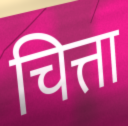
चित्ता